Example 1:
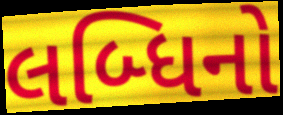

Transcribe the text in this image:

લબ્ધિનો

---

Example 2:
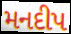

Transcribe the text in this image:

મનદીપ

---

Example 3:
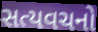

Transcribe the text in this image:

સત્યવચનો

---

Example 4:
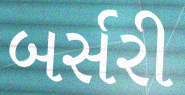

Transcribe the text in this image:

બર્સરી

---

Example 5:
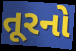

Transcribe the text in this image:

તૂરનો